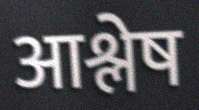
आश्लेष